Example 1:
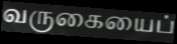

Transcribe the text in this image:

வருகையைப்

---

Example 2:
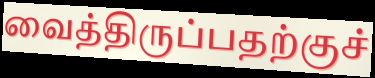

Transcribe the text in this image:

வைத்திருப்பதற்குச்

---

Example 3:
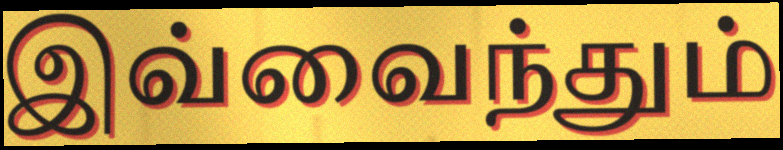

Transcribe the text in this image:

இவ்வைந்தும்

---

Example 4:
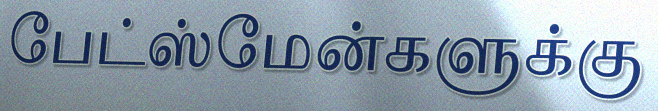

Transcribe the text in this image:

பேட்ஸ்மேன்களுக்கு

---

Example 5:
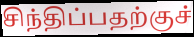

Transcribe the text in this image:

சிந்திப்பதற்குச்